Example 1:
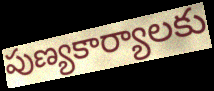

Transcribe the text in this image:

పుణ్యకార్యాలకు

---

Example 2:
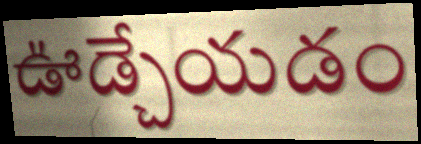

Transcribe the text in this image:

ఊడ్చేయడం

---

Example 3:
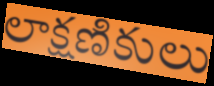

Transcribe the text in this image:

లాక్షణికులు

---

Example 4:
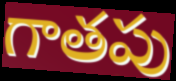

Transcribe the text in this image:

గాతపు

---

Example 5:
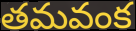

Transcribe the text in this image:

తమవంక